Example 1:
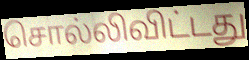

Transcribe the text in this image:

சொல்லிவிட்டது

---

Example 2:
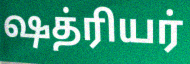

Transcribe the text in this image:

ஷத்ரியர்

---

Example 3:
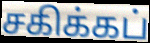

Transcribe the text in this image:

சகிக்கப்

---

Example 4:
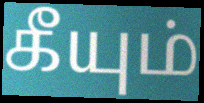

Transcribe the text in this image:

கீயும்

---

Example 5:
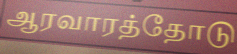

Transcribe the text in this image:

ஆரவாரத்தோடு